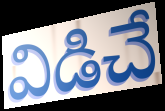
విడిచే